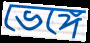
ভেঙ্গে